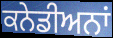
ਕਨੇਡੀਅਨਾਂ